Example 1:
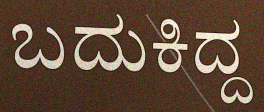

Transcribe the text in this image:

ಬದುಕಿದ್ದ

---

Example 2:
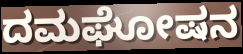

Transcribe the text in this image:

ದಮಘೋಷನ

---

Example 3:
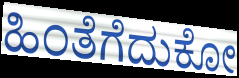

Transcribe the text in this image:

ಹಿಂತೆಗೆದುಕೋ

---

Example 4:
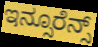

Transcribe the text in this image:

ಇನ್ಸೂರೆನ್ಸ್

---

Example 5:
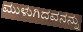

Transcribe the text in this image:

ಮುಳುಗಿದವನನ್ನು